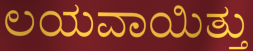
ಲಯವಾಯಿತ್ತು